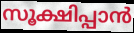
സൂക്ഷിപ്പാൻ